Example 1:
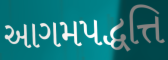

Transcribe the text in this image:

આગમપદ્ધત્તિ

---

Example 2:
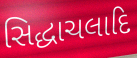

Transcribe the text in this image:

સિદ્ધાચલાદિ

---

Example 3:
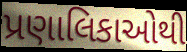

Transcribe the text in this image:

પ્રણાલિકાઓથી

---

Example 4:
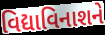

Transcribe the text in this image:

વિદ્યાવિનાશને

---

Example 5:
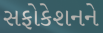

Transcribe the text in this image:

સફોકેશનને